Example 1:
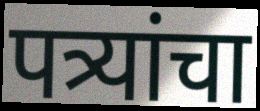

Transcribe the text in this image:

पत्र्यांचा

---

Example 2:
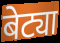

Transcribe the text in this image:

बेट्या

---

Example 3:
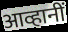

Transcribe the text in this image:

आव्हानीं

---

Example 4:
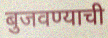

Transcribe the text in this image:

बुजवण्याची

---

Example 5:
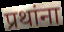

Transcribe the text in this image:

प्रथांना